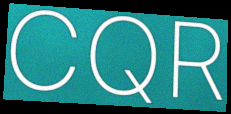
CQR